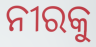
ନୀରକୁ